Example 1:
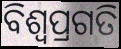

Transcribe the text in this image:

ବିଶ୍ବପ୍ରଗତି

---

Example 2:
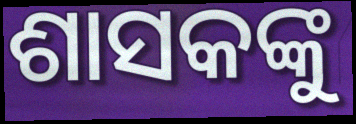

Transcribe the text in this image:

ଶାସକଙ୍କୁ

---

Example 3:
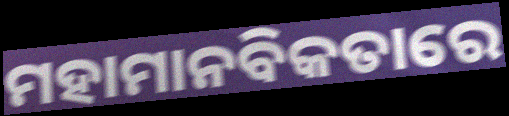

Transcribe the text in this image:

ମହାମାନବିକତାରେ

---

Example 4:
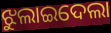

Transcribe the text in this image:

ଝୁଲାଇଦେଲା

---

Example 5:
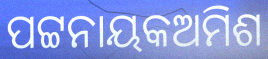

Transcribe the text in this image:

ପଟ୍ଟନାୟକଅମିଶ